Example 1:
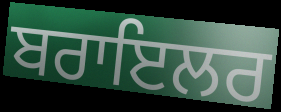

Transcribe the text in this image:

ਬਰਾਇਲਰ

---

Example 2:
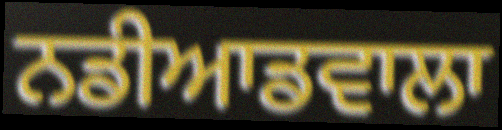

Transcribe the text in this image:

ਨਡੀਆਡਵਾਲਾ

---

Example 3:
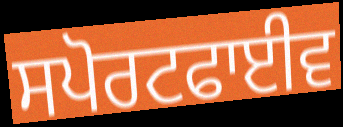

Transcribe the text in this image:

ਸਪੋਰਟਫਾਈਵ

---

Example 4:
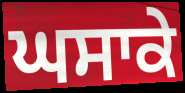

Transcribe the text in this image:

ਘਸਾਕੇ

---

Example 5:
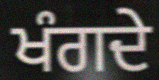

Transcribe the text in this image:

ਖੰਗਦੇ